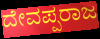
ದೇವಪ್ಪರಾಜ